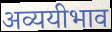
अव्ययीभाव